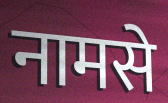
नामसे